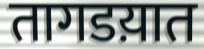
तागडय़ात